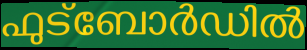
ഫുട്ബോർഡിൽ